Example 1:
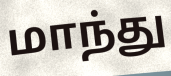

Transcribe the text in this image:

மாந்து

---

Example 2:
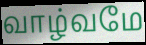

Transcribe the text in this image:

வாழ்வமே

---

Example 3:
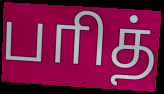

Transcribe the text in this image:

பரித்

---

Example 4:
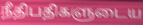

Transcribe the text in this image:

நீதிபதிகளுடைய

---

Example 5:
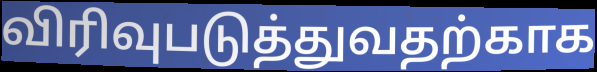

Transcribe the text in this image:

விரிவுபடுத்துவதற்காக